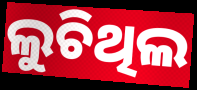
ଲୁଚିଥିଲ